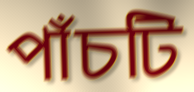
পাঁচটি